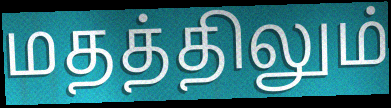
மதத்திலும்